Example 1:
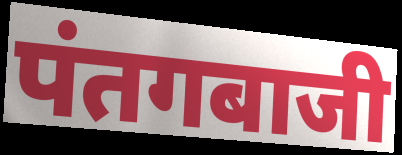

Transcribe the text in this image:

पंतगबाजी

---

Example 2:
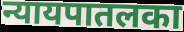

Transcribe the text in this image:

न्यायपातलका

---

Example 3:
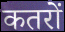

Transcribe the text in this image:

कतरों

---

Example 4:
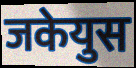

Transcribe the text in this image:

जकेयुस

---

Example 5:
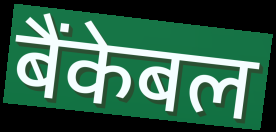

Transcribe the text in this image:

बैंकेबल